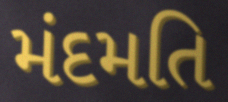
મંદમતિ